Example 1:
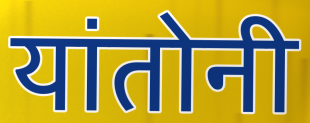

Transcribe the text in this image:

यांतोनी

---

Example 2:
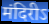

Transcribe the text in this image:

मंदिरीऽ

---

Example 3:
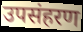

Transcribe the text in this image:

उपसंहरण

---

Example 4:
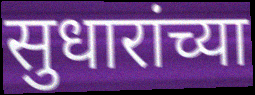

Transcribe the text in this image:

सुधारांच्या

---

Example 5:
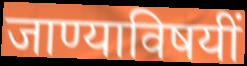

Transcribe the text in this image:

जाण्याविषयीं